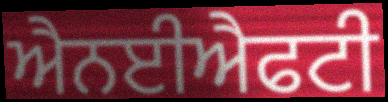
ਐਨਈਐਫਟੀ